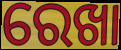
ରେଖା